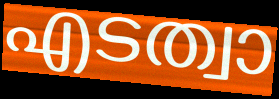
എടത്വാ